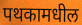
पथकामधील